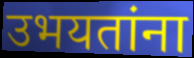
उभयतांना